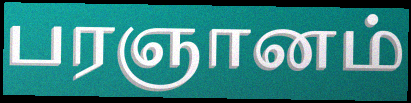
பரஞானம்